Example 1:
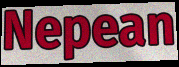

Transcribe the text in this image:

Nepean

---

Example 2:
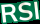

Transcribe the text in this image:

RSI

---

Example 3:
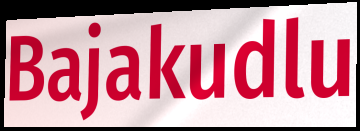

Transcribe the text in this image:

Bajakudlu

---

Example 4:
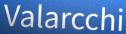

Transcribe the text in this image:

Valarcchi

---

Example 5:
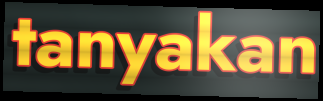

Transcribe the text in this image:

tanyakan